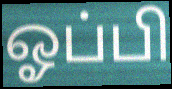
ஓப்பி